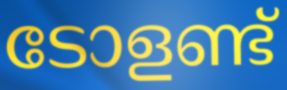
ടോളണ്ട്